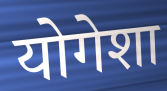
योगेशा